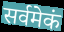
सर्वमेकं